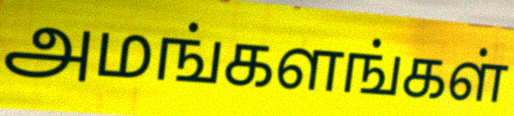
அமங்களங்கள்